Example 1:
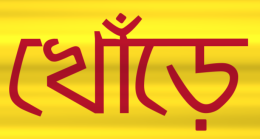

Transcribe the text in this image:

খোঁড়ে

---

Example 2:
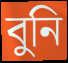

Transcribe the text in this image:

বুনি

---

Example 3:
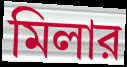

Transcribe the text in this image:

মিলার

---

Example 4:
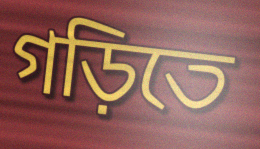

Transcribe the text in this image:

গড়িতে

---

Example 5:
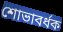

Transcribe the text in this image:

শোভাবর্ধক